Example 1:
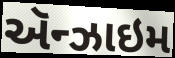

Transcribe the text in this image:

ઍન્ઝાઇમ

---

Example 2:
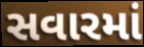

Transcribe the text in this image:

સવારમાં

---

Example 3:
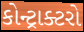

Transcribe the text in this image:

કોન્ટ્રાક્ટરો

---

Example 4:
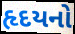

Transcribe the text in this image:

હૃદયનો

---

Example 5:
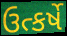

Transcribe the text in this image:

ઉત્કર્ષે